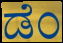
ಡೆಂ